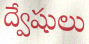
ద్వేషులు